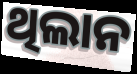
ଥିଲାନ